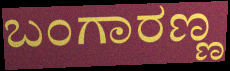
ಬಂಗಾರಣ್ಣ